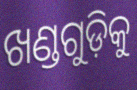
ଖଣ୍ଡଗୁଡ଼ିକୁ